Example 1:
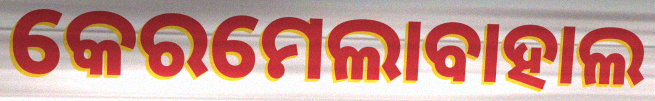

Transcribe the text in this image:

କେରମେଲାବାହାଲ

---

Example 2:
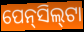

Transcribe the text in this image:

ପେନ୍‌ସିଲ୍‍ଟା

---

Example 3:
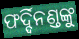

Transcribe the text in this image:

ଫର୍ଦ୍ଦିନଣ୍ଡଙ୍କୁ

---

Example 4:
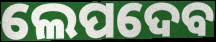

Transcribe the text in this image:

ଲେପଦେବ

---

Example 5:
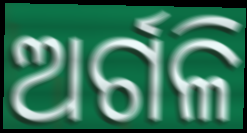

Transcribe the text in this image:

ଅର୍ଗଳି